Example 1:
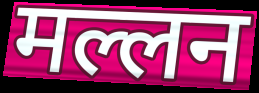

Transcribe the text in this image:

मल्लन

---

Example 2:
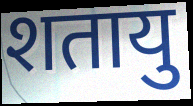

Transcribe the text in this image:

शतायु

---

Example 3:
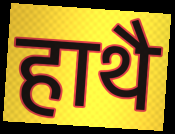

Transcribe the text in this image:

हाथै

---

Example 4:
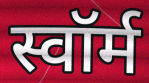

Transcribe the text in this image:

स्वॉर्म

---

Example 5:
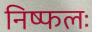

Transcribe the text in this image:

निष्फलः